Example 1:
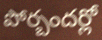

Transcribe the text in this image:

పోర్బందర్లో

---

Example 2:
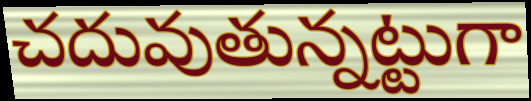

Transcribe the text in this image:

చదువుతున్నట్టుగా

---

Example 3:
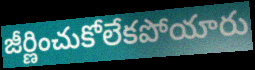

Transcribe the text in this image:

జీర్ణించుకోలేకపోయారు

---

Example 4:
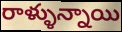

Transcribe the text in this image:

రాళ్ళున్నాయి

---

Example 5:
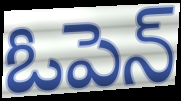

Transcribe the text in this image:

ఓపెన్